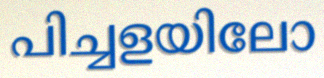
പിച്ചളയിലോ